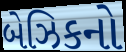
બેઝિકનો